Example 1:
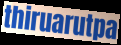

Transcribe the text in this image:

thiruarutpa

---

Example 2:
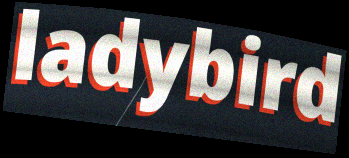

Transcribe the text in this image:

ladybird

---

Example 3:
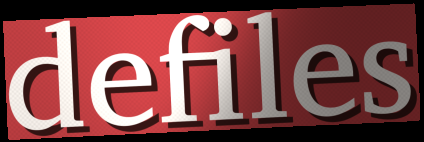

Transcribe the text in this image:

defiles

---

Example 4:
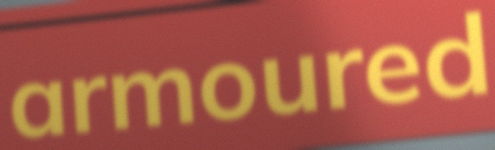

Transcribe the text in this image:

armoured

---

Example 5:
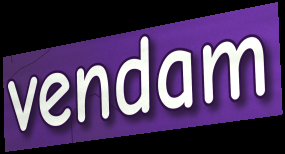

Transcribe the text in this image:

vendam